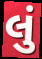
લું